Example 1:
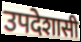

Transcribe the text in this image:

उपदेशासी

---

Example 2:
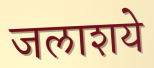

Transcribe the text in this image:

जलाशये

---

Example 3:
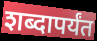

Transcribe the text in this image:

शब्दापर्यंत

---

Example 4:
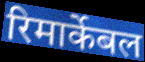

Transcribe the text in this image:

रिमार्केबल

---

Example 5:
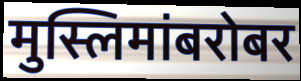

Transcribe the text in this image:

मुस्लिमांबरोबर